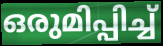
ഒരുമിപ്പിച്ച്